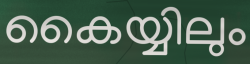
കൈയ്യിലും